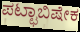
ಪಟ್ಟಾಬಿಷೇಕ